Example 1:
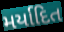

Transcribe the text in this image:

મર્યાદિત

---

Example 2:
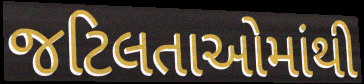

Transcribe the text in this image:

જટિલતાઓમાંથી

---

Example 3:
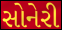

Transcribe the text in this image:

સોનેરી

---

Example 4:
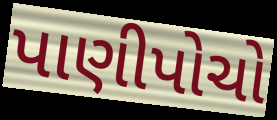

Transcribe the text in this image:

પાણીપોચો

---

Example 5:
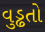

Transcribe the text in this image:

વુડ્ઢતો